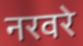
नरवरे